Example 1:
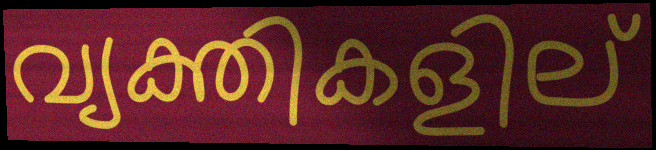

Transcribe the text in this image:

വ്യക്തികളില്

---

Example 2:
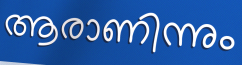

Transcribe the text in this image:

ആരാണിന്നും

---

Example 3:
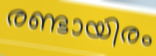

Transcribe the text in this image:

രണ്ടായിരം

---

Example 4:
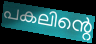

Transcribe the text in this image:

പകലിന്റെ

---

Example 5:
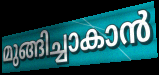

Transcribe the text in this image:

മുങ്ങിച്ചാകാൻ